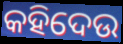
କହିଦେଉ